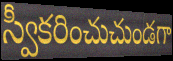
స్వీకరించుచుండగా